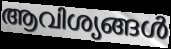
ആവിശ്യങ്ങൾ